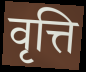
वृत्ति